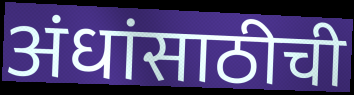
अंधांसाठीची